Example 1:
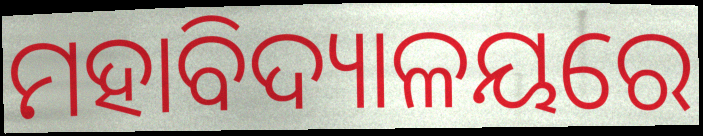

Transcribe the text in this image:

ମହାବିଦ୍ୟାଳୟରେ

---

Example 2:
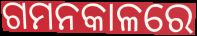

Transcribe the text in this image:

ଗମନକାଳରେ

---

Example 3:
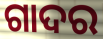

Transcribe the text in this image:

ଗାଦର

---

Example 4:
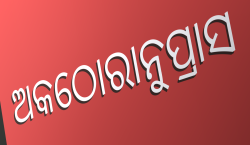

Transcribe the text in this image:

ଅକଠୋରାନୁପ୍ରାସ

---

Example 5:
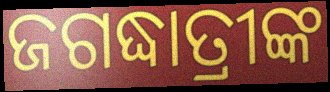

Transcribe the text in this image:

ଜଗଦ୍ଧାତ୍ରୀଙ୍କ